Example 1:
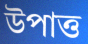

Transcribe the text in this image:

উপাত্ত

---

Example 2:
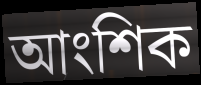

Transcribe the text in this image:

আংশিক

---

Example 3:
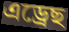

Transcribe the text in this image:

এড্ৰেছ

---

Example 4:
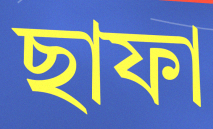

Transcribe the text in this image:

ছাফা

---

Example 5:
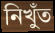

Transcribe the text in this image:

নিখুঁত